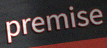
premise